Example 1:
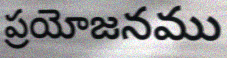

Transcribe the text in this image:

ప్రయోజనము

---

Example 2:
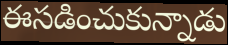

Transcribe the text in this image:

ఈసడించుకున్నాడు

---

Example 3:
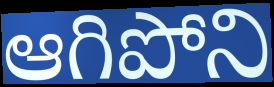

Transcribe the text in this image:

ఆగిపోని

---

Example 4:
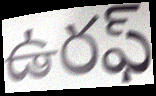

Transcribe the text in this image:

ఉరఫ్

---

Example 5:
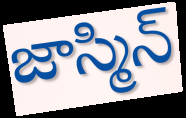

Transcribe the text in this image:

జాస్మిన్